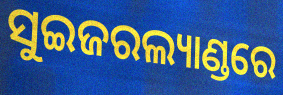
ସୁଇଜରଲ୍ୟାଣ୍ଡରେ